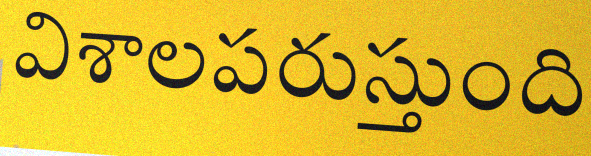
విశాలపరుస్తుంది